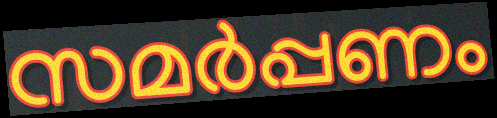
സമർപ്പണം